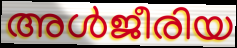
അൾജീരിയ